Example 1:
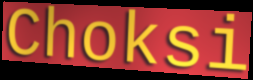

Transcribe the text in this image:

Choksi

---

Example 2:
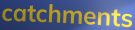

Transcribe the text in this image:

catchments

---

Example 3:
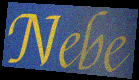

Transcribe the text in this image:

Nebe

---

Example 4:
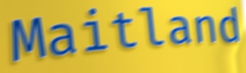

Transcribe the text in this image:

Maitland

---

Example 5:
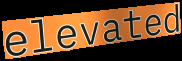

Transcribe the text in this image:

elevated